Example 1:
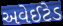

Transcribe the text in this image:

અવેઈટેડ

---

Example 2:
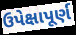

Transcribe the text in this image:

ઉપેક્ષાપૂર્ણ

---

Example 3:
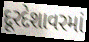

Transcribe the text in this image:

દૂરદેશાવરમાં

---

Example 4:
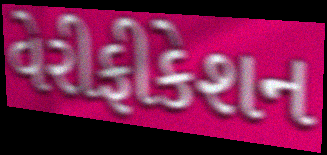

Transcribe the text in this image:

વેરીફીકેશન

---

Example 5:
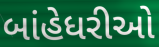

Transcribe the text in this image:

બાંહેધરીઓ